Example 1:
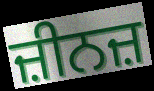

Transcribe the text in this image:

ਜ਼ੀਨਜ਼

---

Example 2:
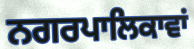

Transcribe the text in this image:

ਨਗਰਪਾਲਿਕਾਵਾਂ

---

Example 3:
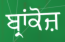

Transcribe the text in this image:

ਬ੍ਰਾਂਕੋਜ਼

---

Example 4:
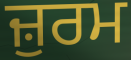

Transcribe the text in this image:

ਜ਼ੁਰਮ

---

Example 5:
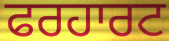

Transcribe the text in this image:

ਫਰਹਾਰਟ